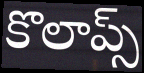
కొలాప్స్